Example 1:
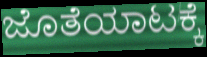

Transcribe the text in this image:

ಜೊತೆಯಾಟಕ್ಕೆ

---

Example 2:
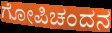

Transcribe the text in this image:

ಗೋಪಿಚಂದನ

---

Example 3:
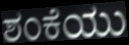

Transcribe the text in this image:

ಶಂಕೆಯು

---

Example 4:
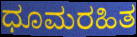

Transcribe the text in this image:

ಧೂಮರಹಿತ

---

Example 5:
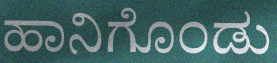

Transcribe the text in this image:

ಹಾನಿಗೊಂಡು